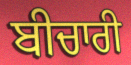
ਬੀਚਾਰੀ